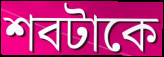
শবটাকে